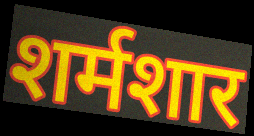
शर्मशार